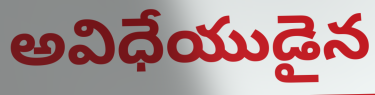
అవిధేయుడైన